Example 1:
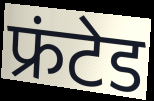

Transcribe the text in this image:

फ्रंटेड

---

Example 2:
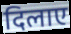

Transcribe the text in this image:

दिलाए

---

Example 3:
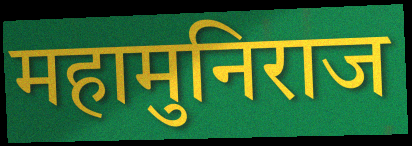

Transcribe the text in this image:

महामुनिराज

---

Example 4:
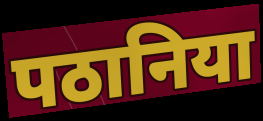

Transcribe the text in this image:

पठानिया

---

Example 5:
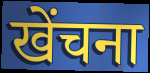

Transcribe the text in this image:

खेंचना